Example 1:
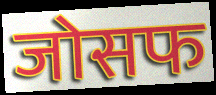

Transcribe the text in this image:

जोसफ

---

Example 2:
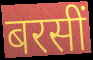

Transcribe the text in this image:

बरसीं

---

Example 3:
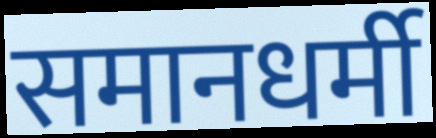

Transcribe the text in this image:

समानधर्मी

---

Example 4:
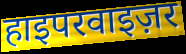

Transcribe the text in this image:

हाइपरवाइज़र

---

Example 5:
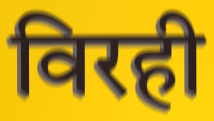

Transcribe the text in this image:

विरही